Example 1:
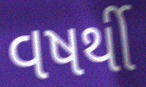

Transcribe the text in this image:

વષર્થી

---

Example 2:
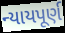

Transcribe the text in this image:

ન્યાયપૂર્ણ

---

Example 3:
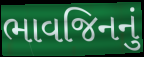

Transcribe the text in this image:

ભાવજિનનું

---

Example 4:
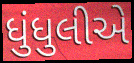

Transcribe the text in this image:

ધુંધુલીએ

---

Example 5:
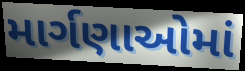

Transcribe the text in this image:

માર્ગણાઓમાં